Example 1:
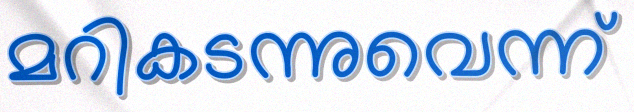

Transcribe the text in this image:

മറികടന്നുവെന്ന്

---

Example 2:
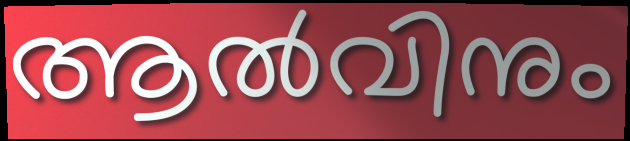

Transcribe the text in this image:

ആൽവിനും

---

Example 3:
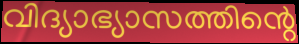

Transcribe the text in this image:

വിദ്യാഭ്യാസത്തിന്റെ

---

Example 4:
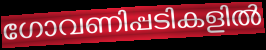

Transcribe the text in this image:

ഗോവണിപ്പടികളിൽ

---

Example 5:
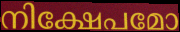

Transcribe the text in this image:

നിക്ഷേപമോ